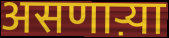
असणाऱ्‍या